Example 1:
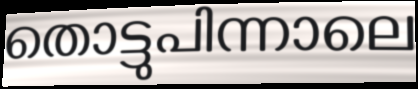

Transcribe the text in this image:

തൊട്ടുപിന്നാലെ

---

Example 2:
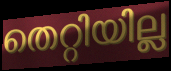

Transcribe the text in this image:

തെറ്റിയില്ല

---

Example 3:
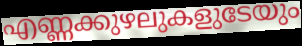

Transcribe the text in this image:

എണ്ണക്കുഴലുകളുടേയും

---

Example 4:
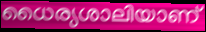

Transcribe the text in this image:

ധൈര്യശാലിയാണ്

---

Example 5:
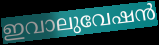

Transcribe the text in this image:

ഇവാലുവേഷൻ